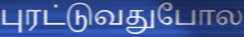
புரட்டுவதுபோல